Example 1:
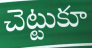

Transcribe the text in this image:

చెట్టుకూ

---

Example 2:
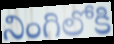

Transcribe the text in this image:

నింగిలోకి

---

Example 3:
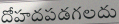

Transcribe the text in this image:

దోహదపడగలదు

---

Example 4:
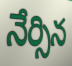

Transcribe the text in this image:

నేర్సిన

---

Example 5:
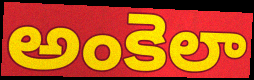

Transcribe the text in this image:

అంకెలా